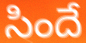
సిందే